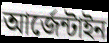
আর্জেন্টাইন